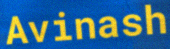
Avinash